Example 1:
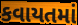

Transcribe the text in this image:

કવાયતમાં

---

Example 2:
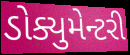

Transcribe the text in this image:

ડોક્યુમેન્ટરી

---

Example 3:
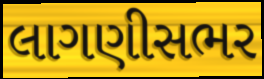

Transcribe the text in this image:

લાગણીસભર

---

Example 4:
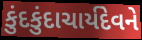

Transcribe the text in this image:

કુંદકુંદાચાર્યદેવને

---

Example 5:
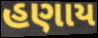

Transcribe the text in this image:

હણાય